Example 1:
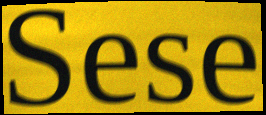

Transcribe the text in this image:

Sese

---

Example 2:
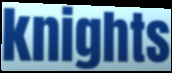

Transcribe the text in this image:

knights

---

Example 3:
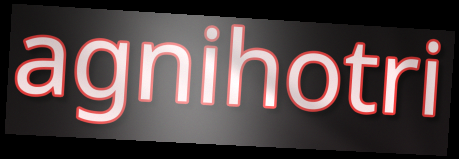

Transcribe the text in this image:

agnihotri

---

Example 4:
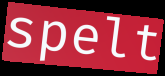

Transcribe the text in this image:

spelt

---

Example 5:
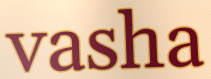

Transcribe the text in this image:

vasha